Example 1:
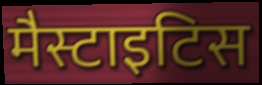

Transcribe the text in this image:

मैस्टाइटिस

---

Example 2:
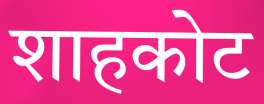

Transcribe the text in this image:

शाहकोट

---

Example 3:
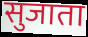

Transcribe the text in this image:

सुजाता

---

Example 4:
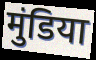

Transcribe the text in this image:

मुंडिया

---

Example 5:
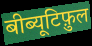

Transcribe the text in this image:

बीब्यूटिफ़ुल